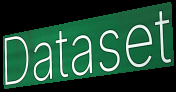
Dataset